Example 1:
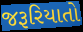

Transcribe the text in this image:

જરૂરિયાતો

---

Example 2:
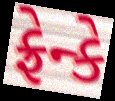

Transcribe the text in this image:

ફ્રેન્કે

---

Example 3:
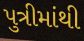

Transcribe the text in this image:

પુત્રીમાંથી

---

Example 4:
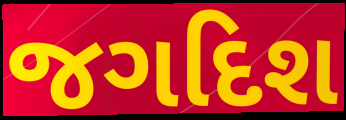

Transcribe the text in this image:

જગદિશ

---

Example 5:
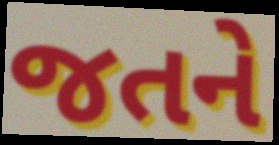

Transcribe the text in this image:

જતને